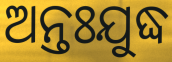
ଅନ୍ତଃଯୁଦ୍ଧ